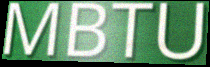
MBTU